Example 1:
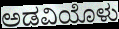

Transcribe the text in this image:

ಅಡವಿಯೊಳು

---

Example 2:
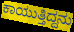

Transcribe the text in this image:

ಕಾಯುತ್ತಿದ್ದನು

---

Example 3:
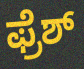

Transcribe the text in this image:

ಫ್ರೆಶ್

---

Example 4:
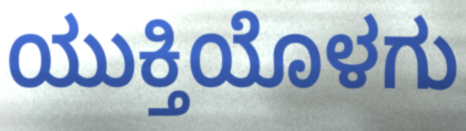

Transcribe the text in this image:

ಯುಕ್ತಿಯೊಳಗು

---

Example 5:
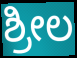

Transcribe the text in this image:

ಶ್ರೀಲ